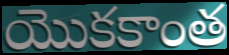
యొకకాంత